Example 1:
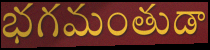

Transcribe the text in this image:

భగమంతుడా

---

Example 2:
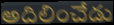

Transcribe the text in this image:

అదిలించేడు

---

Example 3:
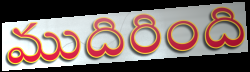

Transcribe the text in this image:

ముదిరింది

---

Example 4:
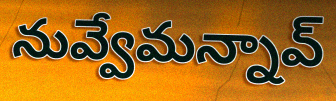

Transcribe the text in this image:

నువ్వేమన్నావ్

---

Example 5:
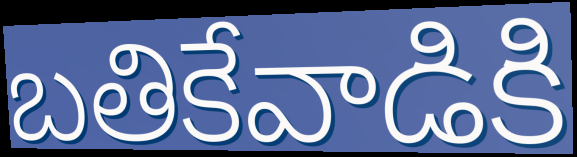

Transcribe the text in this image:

బతికేవాడికి